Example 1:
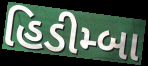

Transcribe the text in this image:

હિડીમ્બા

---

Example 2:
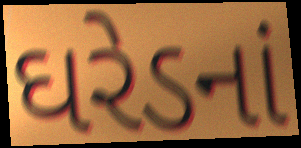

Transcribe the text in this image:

ઘરેડનાં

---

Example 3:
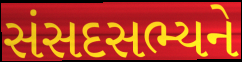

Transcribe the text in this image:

સંસદસભ્યને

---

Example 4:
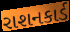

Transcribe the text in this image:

રાશનકાર્ડ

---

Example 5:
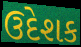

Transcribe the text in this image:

ઉદેશક